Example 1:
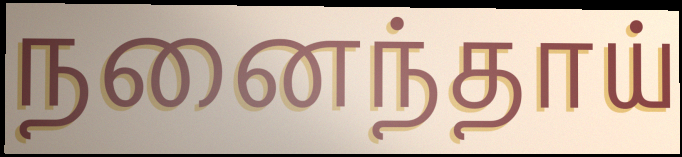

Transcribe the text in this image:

நனைந்தாய்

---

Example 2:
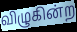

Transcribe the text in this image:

விழுகின்ற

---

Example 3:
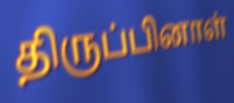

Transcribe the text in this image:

திருப்பினாள்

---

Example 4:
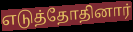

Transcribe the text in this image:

எடுத்தோதினார்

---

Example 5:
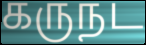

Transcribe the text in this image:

கருநட